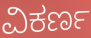
ವಿಕರ್ಣ